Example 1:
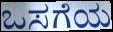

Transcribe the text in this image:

ಒಸಗೆಯ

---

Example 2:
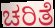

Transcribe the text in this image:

ಚರಿತೆ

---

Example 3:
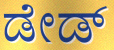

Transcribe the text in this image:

ಡೇಡ್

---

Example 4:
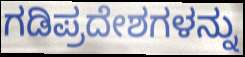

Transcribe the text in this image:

ಗಡಿಪ್ರದೇಶಗಳನ್ನು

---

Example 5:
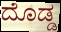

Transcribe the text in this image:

ದೊಡ್ಡ